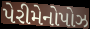
પેરીમેનોપોઝ